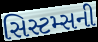
સિસ્ટમ્સની